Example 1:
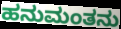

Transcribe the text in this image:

ಹನುಮಂತನು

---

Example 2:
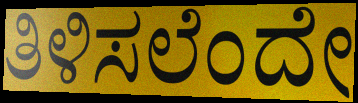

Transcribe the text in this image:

ತಿಳಿಸಲೆಂದೇ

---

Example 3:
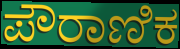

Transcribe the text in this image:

ಪೌರಾಣಿಕ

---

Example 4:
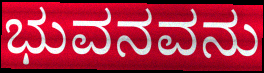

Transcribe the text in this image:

ಭುವನವನು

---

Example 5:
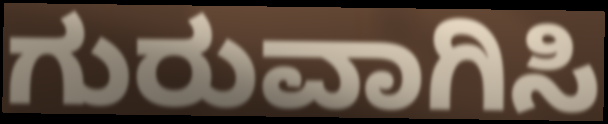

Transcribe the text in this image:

ಗುರುವಾಗಿಸಿ